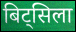
बिट्सिला